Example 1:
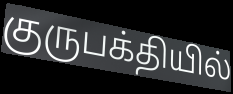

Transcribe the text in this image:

குருபக்தியில்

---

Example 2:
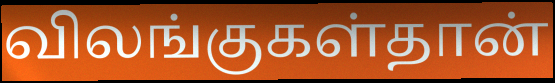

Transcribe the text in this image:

விலங்குகள்தான்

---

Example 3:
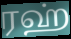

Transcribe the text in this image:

ரஹ்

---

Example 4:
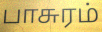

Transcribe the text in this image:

பாசுரம்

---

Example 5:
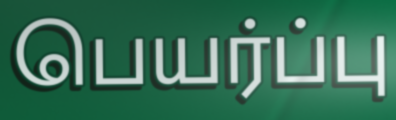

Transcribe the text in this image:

பெயர்ப்பு